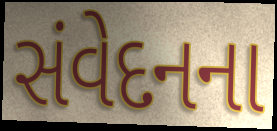
સંવેદનના